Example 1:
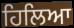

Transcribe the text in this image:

ਹਿਲਿਆ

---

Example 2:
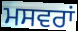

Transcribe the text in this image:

ਮਸਵਰਾਂ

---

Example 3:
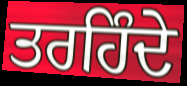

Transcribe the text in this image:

ਤਰਹਿੰਦੇ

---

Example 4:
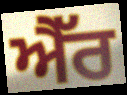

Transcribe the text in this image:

ਐੱਰ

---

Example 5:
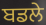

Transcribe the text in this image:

ਬਡਲੇ